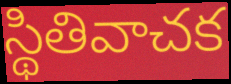
స్థితివాచక